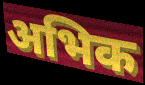
अभिक